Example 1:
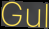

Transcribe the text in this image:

Gul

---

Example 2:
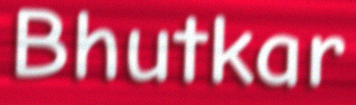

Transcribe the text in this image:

Bhutkar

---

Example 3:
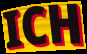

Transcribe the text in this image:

ICH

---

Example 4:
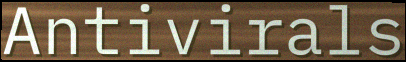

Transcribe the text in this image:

Antivirals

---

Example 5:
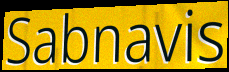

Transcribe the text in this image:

Sabnavis